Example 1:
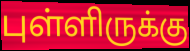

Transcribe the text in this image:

புள்ளிருக்கு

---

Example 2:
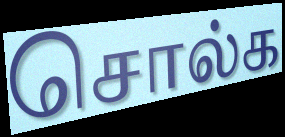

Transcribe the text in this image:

சொல்க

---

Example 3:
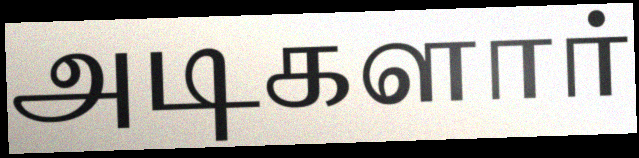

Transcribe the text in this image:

அடிகளார்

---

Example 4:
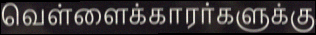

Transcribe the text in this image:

வெள்ளைக்காரர்களுக்கு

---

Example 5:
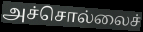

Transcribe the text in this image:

அச்சொல்லைச்